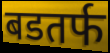
बडतर्फ